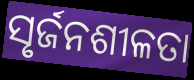
ସୃର୍ଜନଶୀଳତା